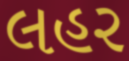
લહર